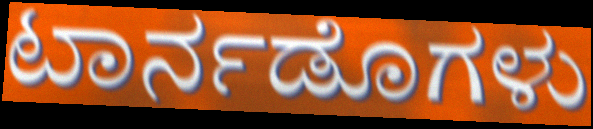
ಟಾರ್ನಡೊಗಳು